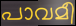
പാവമീ